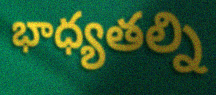
భాధ్యతల్ని